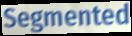
Segmented